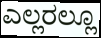
ಎಲ್ಲರಲ್ಲೂ